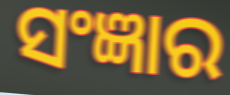
ସଂଜ୍ଞାର